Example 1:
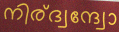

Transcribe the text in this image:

നിര്ദ്വന്ദ്വോ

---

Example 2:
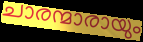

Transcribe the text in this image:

ചാരന്മാരായും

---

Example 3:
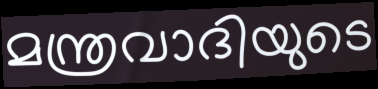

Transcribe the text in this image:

മന്ത്രവാദിയുടെ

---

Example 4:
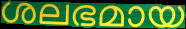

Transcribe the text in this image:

ശലഭമായ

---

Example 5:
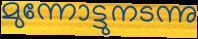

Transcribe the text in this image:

മുന്നോട്ടുനടന്നു